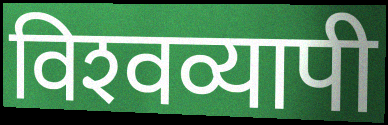
विश्‍वव्यापी